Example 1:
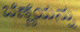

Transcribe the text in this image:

ಬೆಣ್ಣೆಯನ್ನು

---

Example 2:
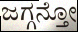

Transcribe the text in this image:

ಜಗ್ಗನ್ತೋ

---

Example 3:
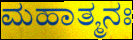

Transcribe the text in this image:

ಮಹಾತ್ಮನಃ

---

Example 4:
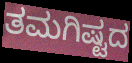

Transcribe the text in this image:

ತಮಗಿಷ್ಟದ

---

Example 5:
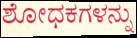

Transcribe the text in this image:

ಶೋಧಕಗಳನ್ನು